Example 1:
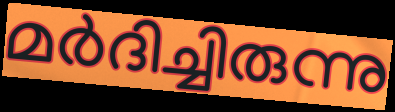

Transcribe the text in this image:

മർദിച്ചിരുന്നു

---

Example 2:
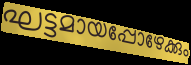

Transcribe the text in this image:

ഘട്ടമായപ്പോഴേക്കും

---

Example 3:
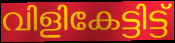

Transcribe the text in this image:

വിളികേട്ടിട്ട്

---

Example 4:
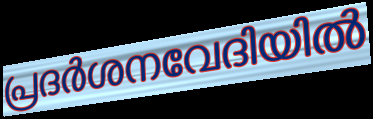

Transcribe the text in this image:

പ്രദർശനവേദിയിൽ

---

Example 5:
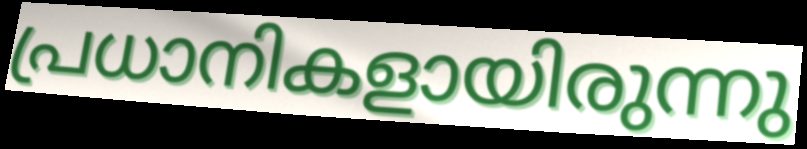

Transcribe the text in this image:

പ്രധാനികളായിരുന്നു